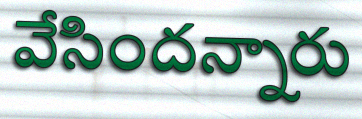
వేసిందన్నారు